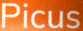
Picus